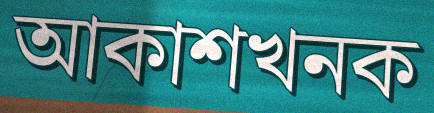
আকাশখনক